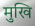
मुखि